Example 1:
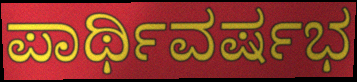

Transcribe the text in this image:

ಪಾರ್ಥಿವರ್ಷಭ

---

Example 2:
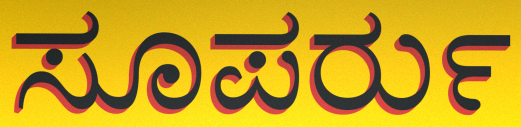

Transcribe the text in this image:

ಸೂಪರ್ರು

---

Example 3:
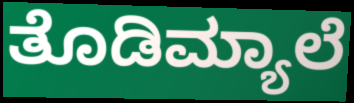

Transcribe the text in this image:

ತೊಡಿಮ್ಯಾಲೆ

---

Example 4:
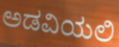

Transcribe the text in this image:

ಅಡವಿಯಲಿ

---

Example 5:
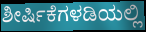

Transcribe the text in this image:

ಶೀರ್ಷಿಕೆಗಳಡಿಯಲ್ಲಿ